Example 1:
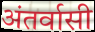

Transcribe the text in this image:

अंतर्वासी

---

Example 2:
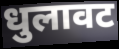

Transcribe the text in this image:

धुलावट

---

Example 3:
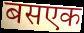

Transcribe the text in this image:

बसएक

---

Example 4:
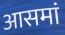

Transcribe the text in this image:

आसमां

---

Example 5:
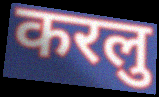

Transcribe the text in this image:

करलु